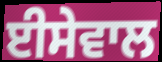
ਈਸੇਵਾਲ